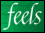
feels